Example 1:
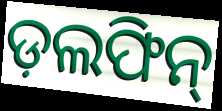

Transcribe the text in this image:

ଡ଼ଲଫିନ୍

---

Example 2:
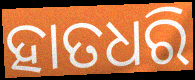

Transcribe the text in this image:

ହାତଧରି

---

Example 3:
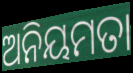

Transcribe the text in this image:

ଅନିୟମତା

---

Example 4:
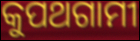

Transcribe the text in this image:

କୁପଥଗାମୀ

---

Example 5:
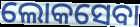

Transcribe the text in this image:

ଲୋକସେବା